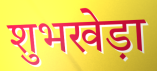
शुभखेड़ा